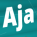
Aja